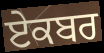
ਏਕਬਰ